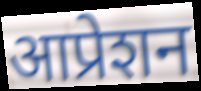
आप्रेशन